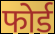
फोर्ड